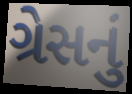
ગ્રેસનું